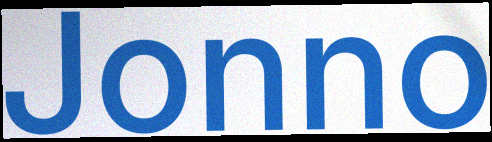
Jonno